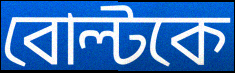
বোল্টকে